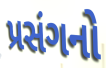
પ્રસંગનો